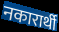
नकारार्थी